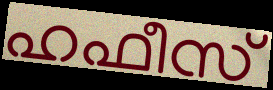
ഹഫീസ്